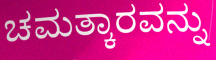
ಚಮತ್ಕಾರವನ್ನು